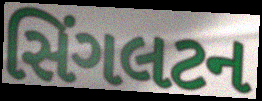
સિંગલટન